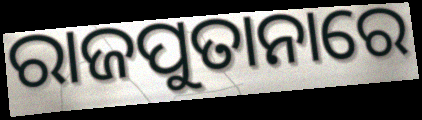
ରାଜପୁତାନାରେ